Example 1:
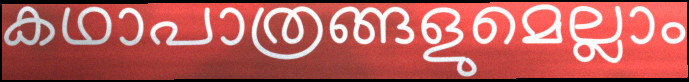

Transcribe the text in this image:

കഥാപാത്രങ്ങളുമെല്ലാം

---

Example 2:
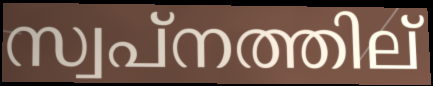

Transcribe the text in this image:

സ്വപ്നത്തില്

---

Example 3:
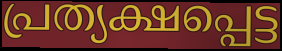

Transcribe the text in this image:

പ്രത്യക്ഷപ്പെട്ട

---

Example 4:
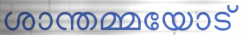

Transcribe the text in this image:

ശാന്തമ്മയോട്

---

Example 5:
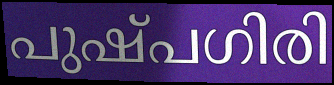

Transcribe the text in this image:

പുഷ്പഗിരി